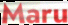
Maru